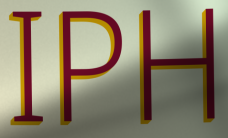
IPH